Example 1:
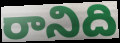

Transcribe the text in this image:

రానిది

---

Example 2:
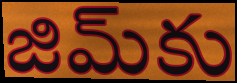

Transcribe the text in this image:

జిమ్‌కు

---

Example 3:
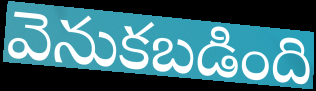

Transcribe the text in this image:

వెనుకబడింది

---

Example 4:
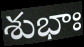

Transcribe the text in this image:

శుభాః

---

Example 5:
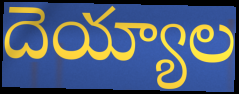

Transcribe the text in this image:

దెయ్యాల